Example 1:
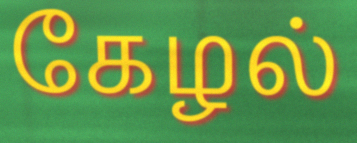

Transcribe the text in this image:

கேழல்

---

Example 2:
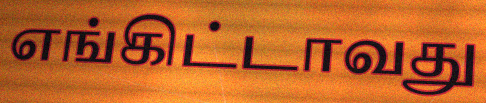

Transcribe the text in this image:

எங்கிட்டாவது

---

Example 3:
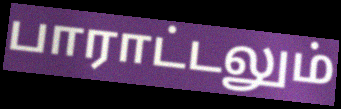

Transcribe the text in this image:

பாராட்டலும்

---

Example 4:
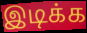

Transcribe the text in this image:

இடிக்க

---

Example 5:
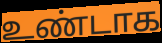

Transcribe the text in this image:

உண்டாக